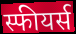
स्फीयर्स